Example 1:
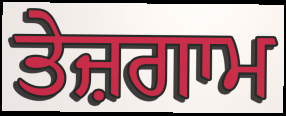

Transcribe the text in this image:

ਤੇਜ਼ਗਾਮ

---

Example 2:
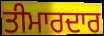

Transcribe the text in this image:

ਤੀਮਾਰਦਾਰ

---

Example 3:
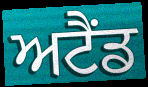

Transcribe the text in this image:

ਅਟੈਂਡ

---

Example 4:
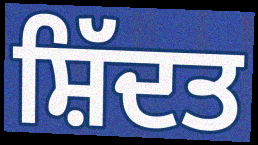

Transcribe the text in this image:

ਸ਼ਿੱਦਤ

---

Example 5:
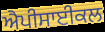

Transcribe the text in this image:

ਐਪੀਸਾਈਕਲ